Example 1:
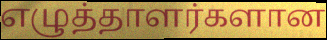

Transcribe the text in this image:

எழுத்தாளர்களான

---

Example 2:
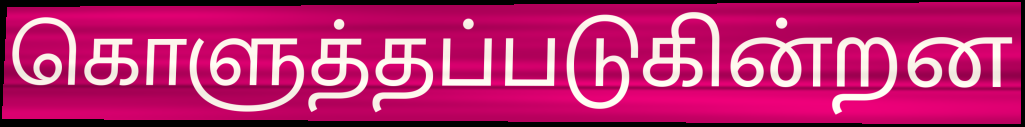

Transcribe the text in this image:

கொளுத்தப்படுகின்றன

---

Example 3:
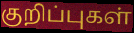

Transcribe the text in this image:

குறிப்புகள்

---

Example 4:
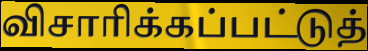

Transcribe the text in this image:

விசாரிக்கப்பட்டுத்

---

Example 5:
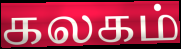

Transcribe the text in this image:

கலகம்